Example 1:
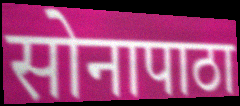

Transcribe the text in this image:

सोनापाठा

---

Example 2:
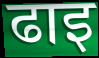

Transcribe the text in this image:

ढाइ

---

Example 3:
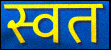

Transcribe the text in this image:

स्वत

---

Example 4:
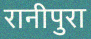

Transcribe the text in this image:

रानीपुरा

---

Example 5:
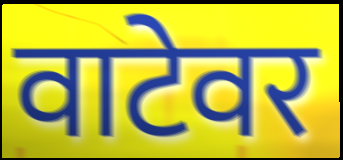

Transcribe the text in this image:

वाटेवर